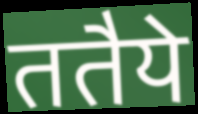
ततैये